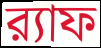
র‍্যাফ